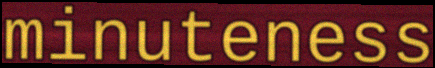
minuteness